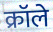
क्रॉले